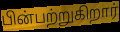
பின்பற்றுகிறார்